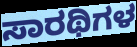
ಸಾರಥಿಗಳ